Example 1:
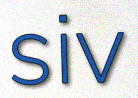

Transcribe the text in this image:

siv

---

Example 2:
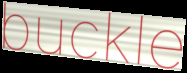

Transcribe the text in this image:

buckle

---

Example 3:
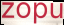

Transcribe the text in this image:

zopu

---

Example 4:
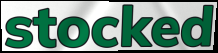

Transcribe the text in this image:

stocked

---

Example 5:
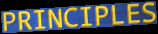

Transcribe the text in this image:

PRINCIPLES